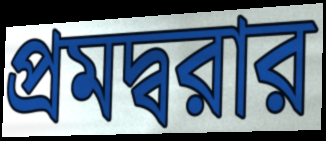
প্রমদ্বরার